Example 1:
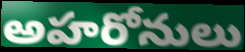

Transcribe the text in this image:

అహరోనులు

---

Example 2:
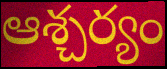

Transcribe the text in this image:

ఆశ్చర్యం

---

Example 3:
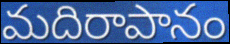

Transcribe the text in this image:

మదిరాపానం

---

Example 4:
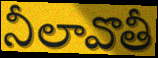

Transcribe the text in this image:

నీలావొతీ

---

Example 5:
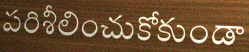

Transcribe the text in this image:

పరిశీలించుకోకుండా